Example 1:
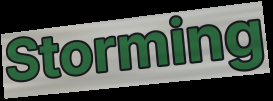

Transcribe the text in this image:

Storming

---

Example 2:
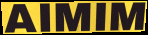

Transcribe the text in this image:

AIMIM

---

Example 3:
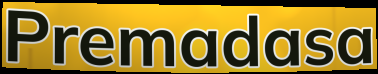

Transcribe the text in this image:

Premadasa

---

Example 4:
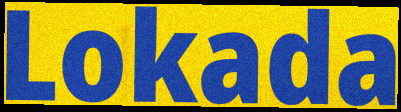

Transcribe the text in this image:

Lokada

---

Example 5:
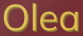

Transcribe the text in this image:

Olea